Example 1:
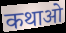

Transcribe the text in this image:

कथाओ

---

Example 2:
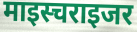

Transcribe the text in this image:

माइस्चराइजर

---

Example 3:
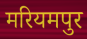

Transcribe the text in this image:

मरियमपुर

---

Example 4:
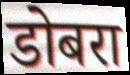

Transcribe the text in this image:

डोबरा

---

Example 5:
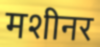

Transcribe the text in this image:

मशीनर